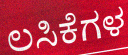
ಲಸಿಕೆಗಳ